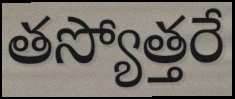
తస్యోత్తరే